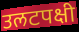
उलटपक्षी